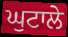
ਘੁਟਾਲੇ